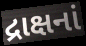
દ્રાક્ષનાં